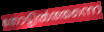
തോട്ടിൽത്തന്നെ